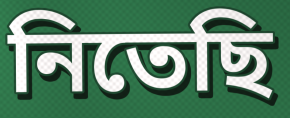
নিতেছি